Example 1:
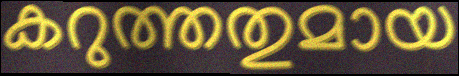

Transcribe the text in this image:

കറുത്തതുമായ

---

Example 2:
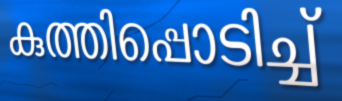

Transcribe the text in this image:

കുത്തിപ്പൊടിച്ച്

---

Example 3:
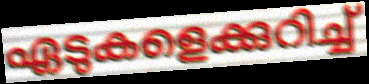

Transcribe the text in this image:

ഏടുകളെക്കുറിച്ച്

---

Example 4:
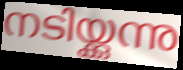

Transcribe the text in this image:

നടിയ്ക്കുന്നു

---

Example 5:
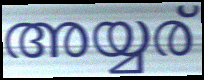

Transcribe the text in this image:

അയ്യര്